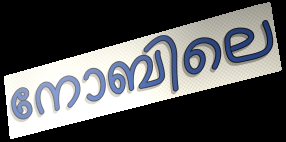
നോബിലെ